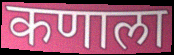
कणाला